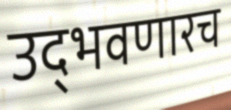
उद्भवणारच